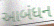
આબંધન